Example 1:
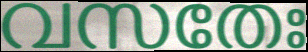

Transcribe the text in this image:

വസതേഃ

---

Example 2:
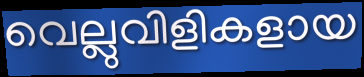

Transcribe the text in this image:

വെല്ലുവിളികളായ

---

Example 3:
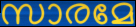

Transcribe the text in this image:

സാരമേ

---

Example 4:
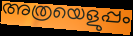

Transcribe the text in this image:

അത്രയെളുപ്പം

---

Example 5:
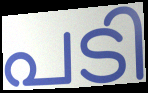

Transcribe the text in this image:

പടി